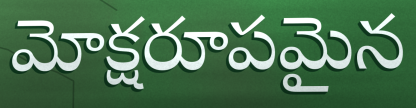
మోక్షరూపమైన